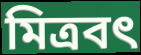
মিত্রবৎ